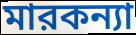
মারকন্যা